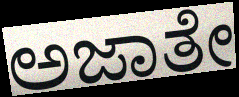
ಅಜಾತೇ